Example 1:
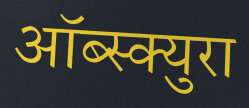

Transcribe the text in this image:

ऑब्स्क्युरा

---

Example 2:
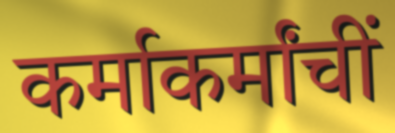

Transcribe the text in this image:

कर्माकर्मांचीं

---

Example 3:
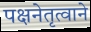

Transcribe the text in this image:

पक्षनेतृत्वाने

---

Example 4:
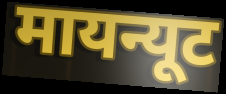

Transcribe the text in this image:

मायन्यूट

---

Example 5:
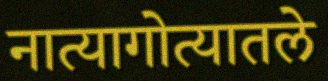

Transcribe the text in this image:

नात्यागोत्यातले